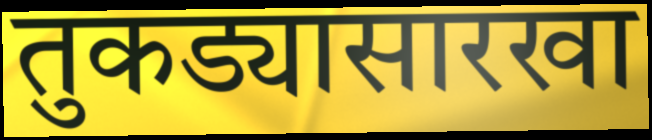
तुकड्यासारखा